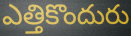
ఎత్తికొందురు